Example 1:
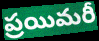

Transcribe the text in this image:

ప్రయిమరీ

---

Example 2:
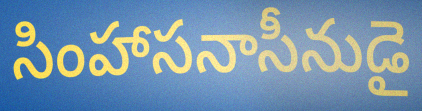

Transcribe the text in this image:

సింహాసనాసీనుడై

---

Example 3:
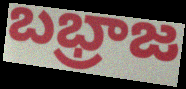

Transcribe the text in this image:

బభ్రాజ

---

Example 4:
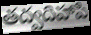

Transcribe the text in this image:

తద్వదిహాపి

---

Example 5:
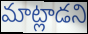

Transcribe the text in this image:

మాట్లాడని